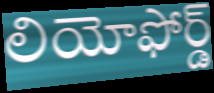
లియోఫోర్డ్